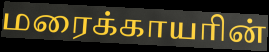
மரைக்காயரின்